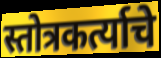
स्तोत्रकर्त्याचे